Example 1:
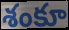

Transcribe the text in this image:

శంకూ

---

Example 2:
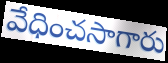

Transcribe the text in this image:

వేధించసాగారు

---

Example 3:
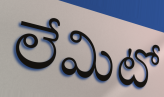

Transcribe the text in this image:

లేమిటో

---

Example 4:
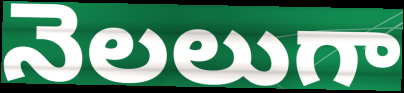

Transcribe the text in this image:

నెలలుగా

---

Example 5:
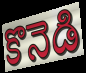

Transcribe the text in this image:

కొనెడి